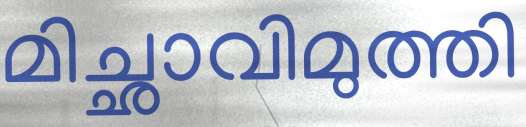
മിച്ഛാവിമുത്തി